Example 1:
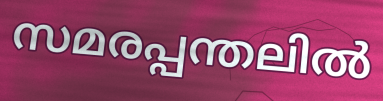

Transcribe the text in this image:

സമരപ്പന്തലിൽ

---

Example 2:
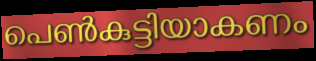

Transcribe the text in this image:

പെൺകുട്ടിയാകണം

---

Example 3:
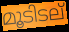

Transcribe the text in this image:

മൂടിടല്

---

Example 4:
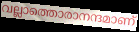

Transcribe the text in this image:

വല്ലാത്തൊരാനന്ദമാണ്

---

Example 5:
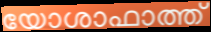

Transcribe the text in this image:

യോശാഫാത്ത്